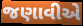
જણાવીએ